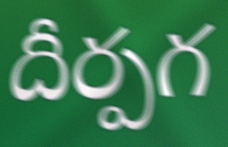
దీర్పగ